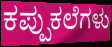
ಕಪ್ಪುಕಲೆಗಳು